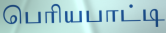
பெரியபாட்டி